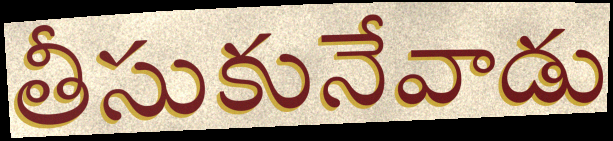
తీసుకునేవాడు